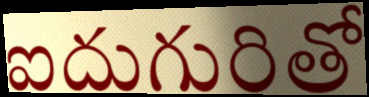
ఐదుగురితో